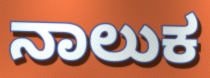
ನಾಲುಕ